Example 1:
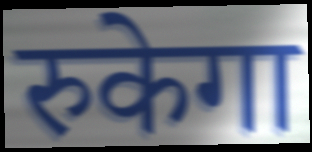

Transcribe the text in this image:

रुकेगा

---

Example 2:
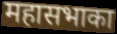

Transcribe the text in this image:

महासभाका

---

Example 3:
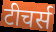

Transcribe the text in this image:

टीचर्स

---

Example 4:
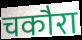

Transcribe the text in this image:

चकौरा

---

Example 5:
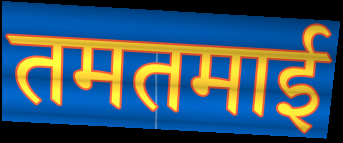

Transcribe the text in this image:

तमतमाई